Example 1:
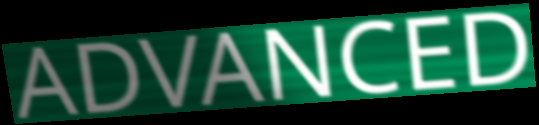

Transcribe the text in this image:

ADVANCED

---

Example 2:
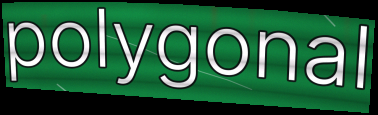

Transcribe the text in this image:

polygonal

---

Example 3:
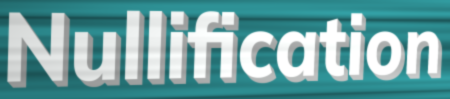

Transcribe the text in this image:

Nullification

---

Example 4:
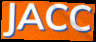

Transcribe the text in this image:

JACC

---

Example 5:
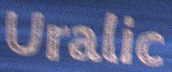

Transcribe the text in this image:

Uralic